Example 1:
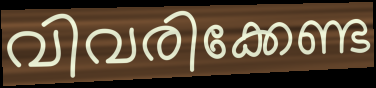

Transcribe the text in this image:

വിവരിക്കേണ്ട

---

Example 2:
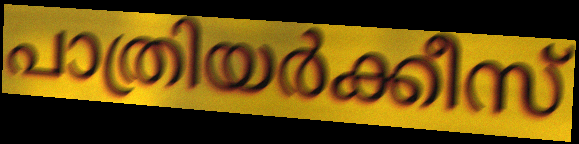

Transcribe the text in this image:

പാത്രിയർക്കീസ്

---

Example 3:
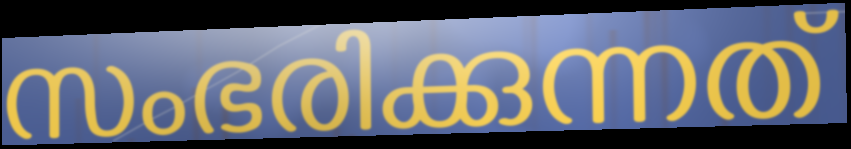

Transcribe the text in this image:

സംഭരിക്കുന്നത്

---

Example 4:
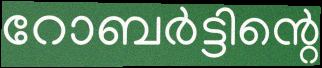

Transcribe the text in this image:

റോബർട്ടിന്റെ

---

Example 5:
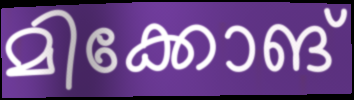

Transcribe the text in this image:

മിക്കോങ്